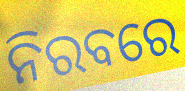
ନିରବରେ